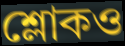
শ্লোকও